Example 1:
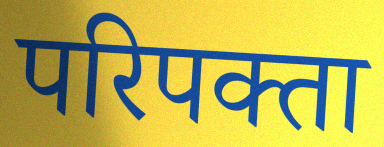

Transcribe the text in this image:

परिपक्ता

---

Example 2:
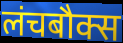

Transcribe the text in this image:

लंचबौक्स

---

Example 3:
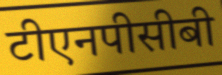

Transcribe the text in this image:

टीएनपीसीबी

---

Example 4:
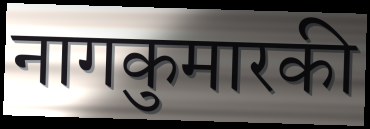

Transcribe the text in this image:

नागकुमारकी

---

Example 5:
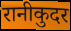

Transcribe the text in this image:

रानीकुदर